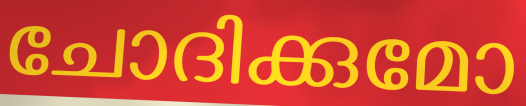
ചോദിക്കുമോ